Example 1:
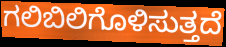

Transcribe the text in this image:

ಗಲಿಬಿಲಿಗೊಳಿಸುತ್ತದೆ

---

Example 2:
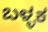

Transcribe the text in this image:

ಬಳ್ಳಕ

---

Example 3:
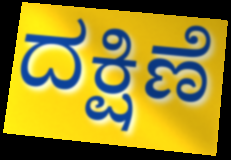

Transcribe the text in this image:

ದಕ್ಷಿಣೆ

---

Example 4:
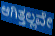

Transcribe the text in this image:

ಆಗಿತ್ತಲ್ಲವೇ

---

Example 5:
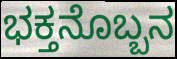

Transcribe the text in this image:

ಭಕ್ತನೊಬ್ಬನ